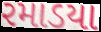
રમાડયા